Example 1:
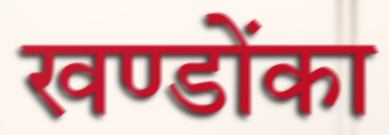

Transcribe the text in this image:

खण्डोंका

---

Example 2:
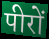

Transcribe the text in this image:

पीरों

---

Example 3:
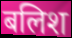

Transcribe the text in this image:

बलिश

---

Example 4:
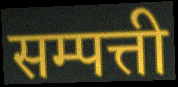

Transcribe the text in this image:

सम्पत्ती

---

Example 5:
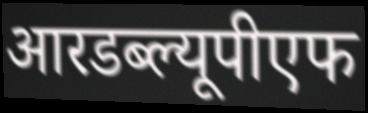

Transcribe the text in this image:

आरडब्ल्यूपीएफ